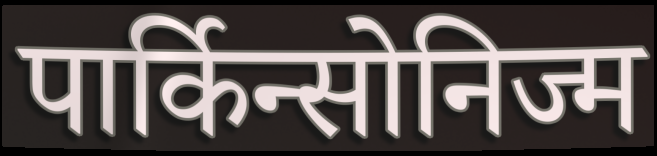
पार्किन्सोनिज्म